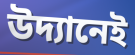
উদ্যানেই